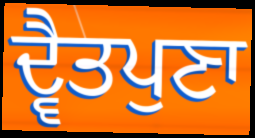
ਦ੍ਵੈਤਪੁਣਾ